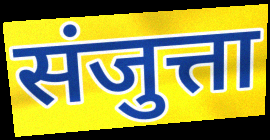
संजुत्ता